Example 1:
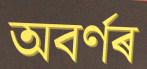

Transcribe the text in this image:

অবৰ্ণৰ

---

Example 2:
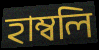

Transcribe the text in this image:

হাম্বলি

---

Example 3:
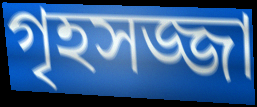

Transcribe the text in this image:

গৃহসজ্জা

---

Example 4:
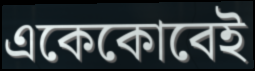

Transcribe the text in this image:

একেকোবেই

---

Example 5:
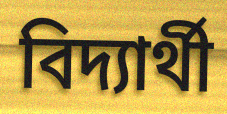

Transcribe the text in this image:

বিদ্যাৰ্থী